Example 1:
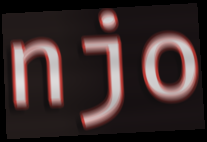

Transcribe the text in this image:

njo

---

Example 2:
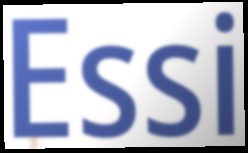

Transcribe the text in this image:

Essi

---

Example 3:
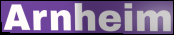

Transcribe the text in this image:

Arnheim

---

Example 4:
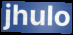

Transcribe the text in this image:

jhulo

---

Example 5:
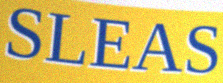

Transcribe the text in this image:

SLEAS